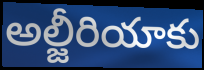
అల్జీరియాకు